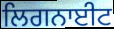
ਲਿਗਨਾਈਟ